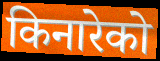
किनारेको